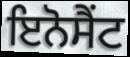
ਇਨੋਸੈਂਟ